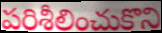
పరిశీలించుకొని